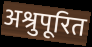
अश्रुपूरित